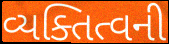
વ્યક્તિત્વની